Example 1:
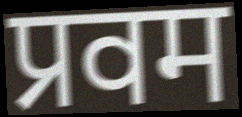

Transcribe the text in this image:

प्रवम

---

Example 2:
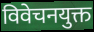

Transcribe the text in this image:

विवेचनयुक्त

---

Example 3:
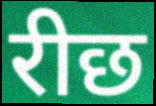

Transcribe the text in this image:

रीछ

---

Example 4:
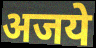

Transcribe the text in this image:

अजये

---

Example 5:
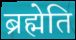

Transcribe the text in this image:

ब्रह्मेति